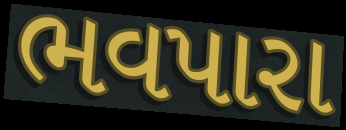
ભવપારા